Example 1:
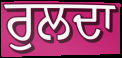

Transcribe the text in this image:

ਰੁਲਦਾ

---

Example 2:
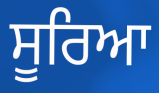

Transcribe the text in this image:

ਸੂਰਿਆ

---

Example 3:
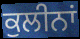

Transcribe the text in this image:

ਕੁਲੀਨਾਂ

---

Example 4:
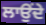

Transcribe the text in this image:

ਲਾਉਂਦੇ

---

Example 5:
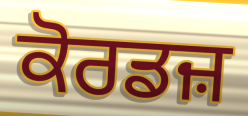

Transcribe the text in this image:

ਕੋਰਡਜ਼